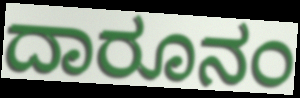
ದಾರೂನಂ